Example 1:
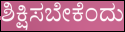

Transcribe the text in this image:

ಶಿಕ್ಷಿಸಬೇಕೆಂದು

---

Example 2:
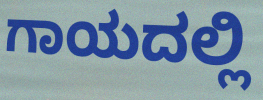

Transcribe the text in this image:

ಗಾಯದಲ್ಲಿ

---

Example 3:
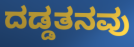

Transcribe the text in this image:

ದಡ್ಡತನವು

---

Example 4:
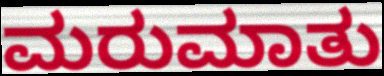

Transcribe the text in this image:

ಮರುಮಾತು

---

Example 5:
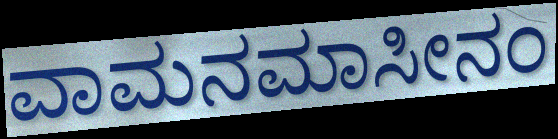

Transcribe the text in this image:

ವಾಮನಮಾಸೀನಂ